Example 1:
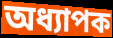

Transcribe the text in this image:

অধ্যাপক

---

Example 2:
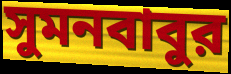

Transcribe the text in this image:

সুমনবাবুর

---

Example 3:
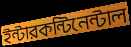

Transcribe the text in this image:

ইন্টারকন্টিনেন্টাল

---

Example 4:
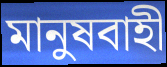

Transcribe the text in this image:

মানুষবাহী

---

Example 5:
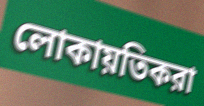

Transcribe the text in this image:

লোকায়তিকরা